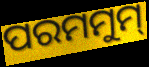
ପରମମୁମ୍